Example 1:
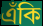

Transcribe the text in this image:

এঁকি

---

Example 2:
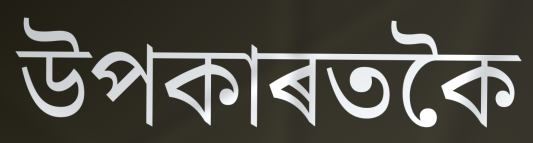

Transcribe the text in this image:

উপকাৰতকৈ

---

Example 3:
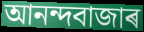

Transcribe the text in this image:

আনন্দবাজাৰ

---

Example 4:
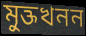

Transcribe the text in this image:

মুক্তখনন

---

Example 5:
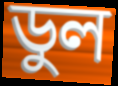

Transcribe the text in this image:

ডুল